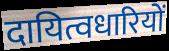
दायित्वधारियों